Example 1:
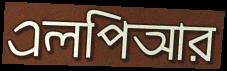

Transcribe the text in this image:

এলপিআর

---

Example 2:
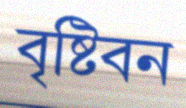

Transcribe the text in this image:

বৃষ্টিবন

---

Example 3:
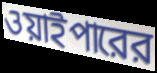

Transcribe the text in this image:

ওয়াইপারের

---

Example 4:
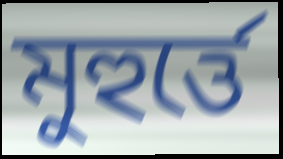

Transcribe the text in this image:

মুহুর্ত্তে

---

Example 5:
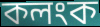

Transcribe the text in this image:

কলংক